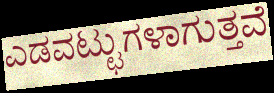
ಎಡವಟ್ಟುಗಳಾಗುತ್ತವೆ